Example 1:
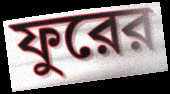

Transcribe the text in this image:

ফুরের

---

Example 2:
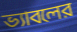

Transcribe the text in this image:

ভ্যাবলের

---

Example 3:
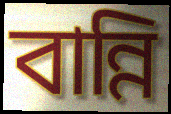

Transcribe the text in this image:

বান্নি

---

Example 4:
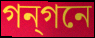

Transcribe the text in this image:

গন্গনে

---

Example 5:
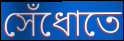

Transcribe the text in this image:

সেঁধোতে